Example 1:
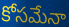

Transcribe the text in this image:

కోసమేనా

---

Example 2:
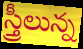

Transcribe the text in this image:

స్త్రీలున్న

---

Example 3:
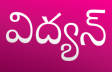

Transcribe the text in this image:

విద్యన్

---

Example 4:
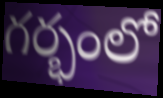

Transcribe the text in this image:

గర్భంలో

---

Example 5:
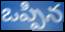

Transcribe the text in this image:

ఒప్పిన